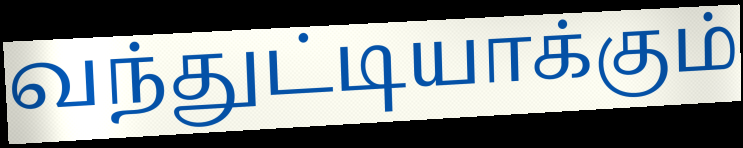
வந்துட்டியாக்கும்